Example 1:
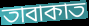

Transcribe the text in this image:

তাবাকাত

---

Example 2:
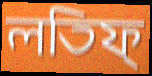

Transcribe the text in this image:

লতিফ্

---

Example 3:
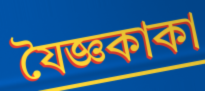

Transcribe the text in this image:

যৈজ্ঞকাকা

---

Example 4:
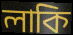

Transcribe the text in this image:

লাকি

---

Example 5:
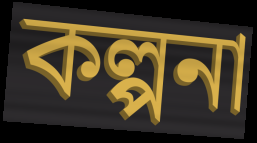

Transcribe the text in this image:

কল্পনা